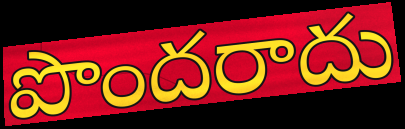
పొందరాదు